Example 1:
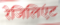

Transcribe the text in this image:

रेजिलिएंट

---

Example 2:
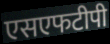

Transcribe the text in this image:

एसएफटीपी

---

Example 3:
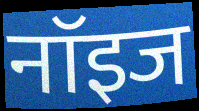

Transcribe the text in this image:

नॉइज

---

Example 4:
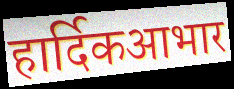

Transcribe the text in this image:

हार्दिकआभार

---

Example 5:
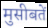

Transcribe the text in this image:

मुसीबतें